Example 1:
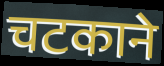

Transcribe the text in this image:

चटकाने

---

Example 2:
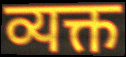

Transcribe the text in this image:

व्यक्त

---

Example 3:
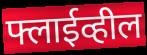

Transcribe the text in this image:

फ्लाईव्हील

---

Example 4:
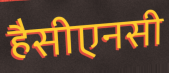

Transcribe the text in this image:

हैसीएनसी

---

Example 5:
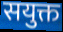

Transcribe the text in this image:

सयुक्त